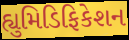
હ્યુમિડિફિકેશન